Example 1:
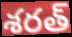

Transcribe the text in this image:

శరత్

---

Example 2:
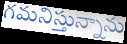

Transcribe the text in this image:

గమనిస్తున్నాను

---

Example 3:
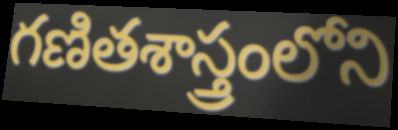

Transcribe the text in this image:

గణితశాస్త్రంలోని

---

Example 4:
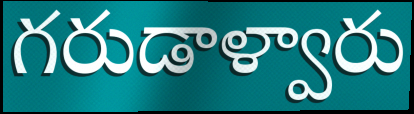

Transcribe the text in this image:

గరుడాళ్వారు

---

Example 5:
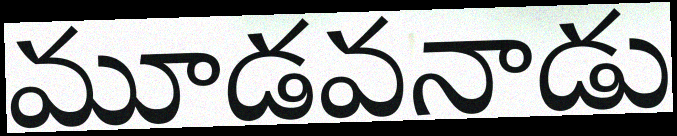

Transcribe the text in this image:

మూడవనాడు